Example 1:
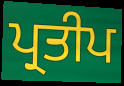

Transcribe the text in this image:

ਪ੍ਰਤੀਪ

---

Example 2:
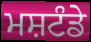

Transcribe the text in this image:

ਮਸ਼ਟੰਡੇ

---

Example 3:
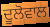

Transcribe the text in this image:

ਦੂਲੋਵਾਲ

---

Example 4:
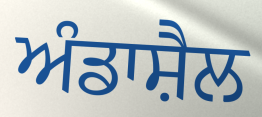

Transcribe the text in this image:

ਅੰਡਾਸ਼ੈਲ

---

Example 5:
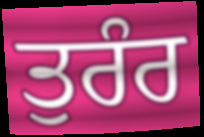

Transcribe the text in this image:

ਤੁਰੰਰ